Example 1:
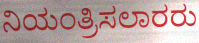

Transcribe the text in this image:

ನಿಯಂತ್ರಿಸಲಾರರು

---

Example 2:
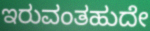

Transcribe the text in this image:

ಇರುವಂತಹುದೇ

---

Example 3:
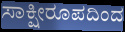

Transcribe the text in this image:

ಸಾಕ್ಷೀರೂಪದಿಂದ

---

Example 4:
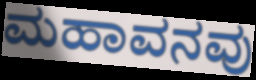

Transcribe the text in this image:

ಮಹಾವನವು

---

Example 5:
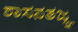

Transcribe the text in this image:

ಶಾಸನತಜ್ಞ